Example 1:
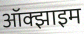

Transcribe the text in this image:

ऑक्झाइम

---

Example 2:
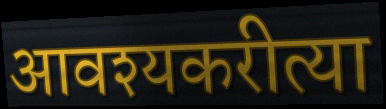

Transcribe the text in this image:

आवश्यकरीत्या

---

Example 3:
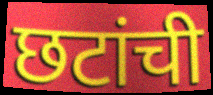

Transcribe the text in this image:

छटांची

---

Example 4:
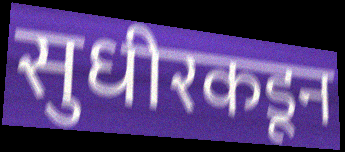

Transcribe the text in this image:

सुधीरकडून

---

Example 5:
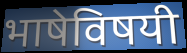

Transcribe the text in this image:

भाषेविषयी